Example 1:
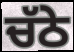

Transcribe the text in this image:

ਚੱਠੇ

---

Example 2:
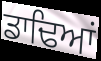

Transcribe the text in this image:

ਡਾਢਿਆਂ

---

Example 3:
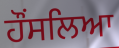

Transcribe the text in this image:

ਹੌਂਸਲਿਆ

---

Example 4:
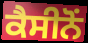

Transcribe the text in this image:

ਕੈਸੀਨੋਂ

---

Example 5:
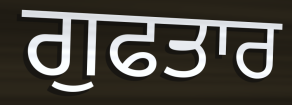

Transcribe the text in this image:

ਗੁਫਤਾਰ